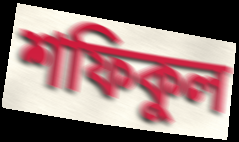
শফিকুল